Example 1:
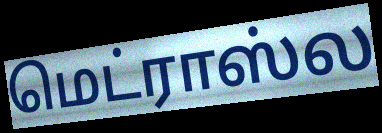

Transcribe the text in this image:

மெட்ராஸ்ல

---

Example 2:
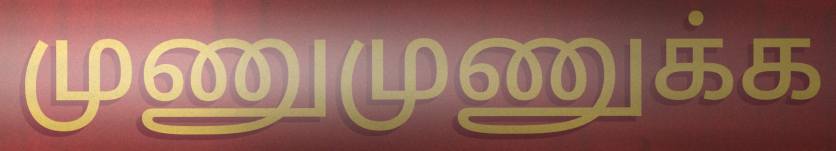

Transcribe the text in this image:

முணுமுணுக்க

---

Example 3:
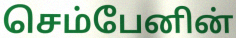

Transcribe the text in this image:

செம்பேனின்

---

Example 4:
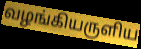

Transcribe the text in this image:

வழங்கியருளிய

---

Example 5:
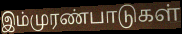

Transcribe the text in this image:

இம்முரண்பாடுகள்